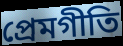
প্রেমগীতি